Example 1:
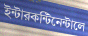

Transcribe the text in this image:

ইন্টারকন্টিনেন্টালে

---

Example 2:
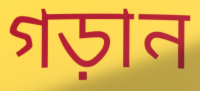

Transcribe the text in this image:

গড়ান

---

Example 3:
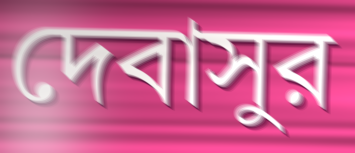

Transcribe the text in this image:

দেবাসুর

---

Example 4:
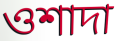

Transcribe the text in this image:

ওশাদা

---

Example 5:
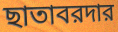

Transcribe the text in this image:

ছাতাবরদার